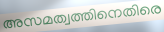
അസമത്വത്തിനെതിരെ